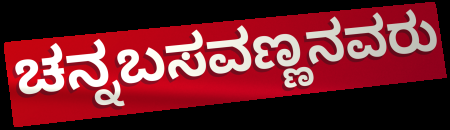
ಚನ್ನಬಸವಣ್ಣನವರು